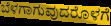
ಬೆಳಗಾಗುವುದರೊಳಗೆ